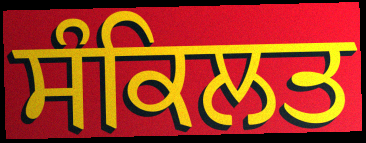
ਸੰਕਿਲਤ